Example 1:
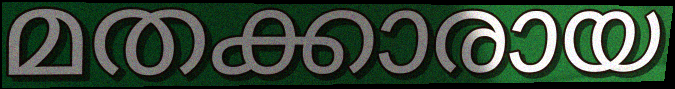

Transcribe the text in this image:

മതക്കാരായ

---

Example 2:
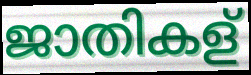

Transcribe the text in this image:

ജാതികള്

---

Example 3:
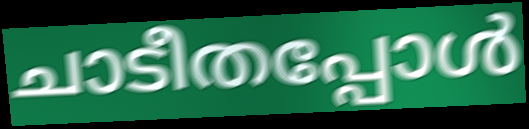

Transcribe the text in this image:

ചാടീതപ്പോൾ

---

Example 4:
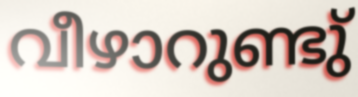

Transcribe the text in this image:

വീഴാറുണ്ടു്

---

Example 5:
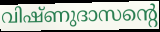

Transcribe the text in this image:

വിഷ്ണുദാസന്റെ